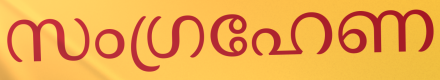
സംഗ്രഹേണ